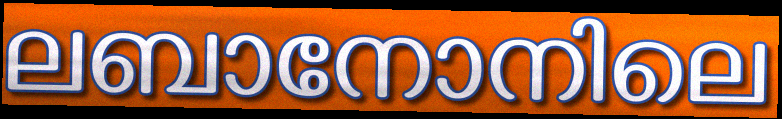
ലബാനോനിലെ